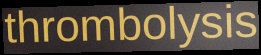
thrombolysis